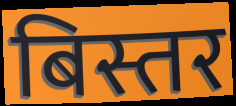
बिस्‍तर